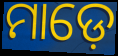
ମାଡ଼େ